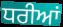
ਧਰੀਆਂ